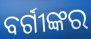
ବର୍ଗୀଙ୍କର